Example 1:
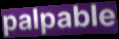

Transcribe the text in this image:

palpable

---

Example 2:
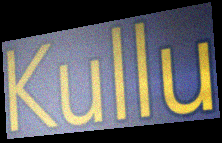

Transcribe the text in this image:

Kullu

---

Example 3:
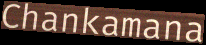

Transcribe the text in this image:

Chankamana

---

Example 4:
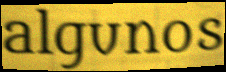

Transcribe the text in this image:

algunos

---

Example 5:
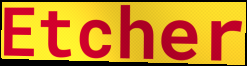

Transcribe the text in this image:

Etcher